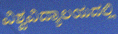
ವಿಶ್ವವಿದ್ಯಾಲಯದಲ್ಲಿ